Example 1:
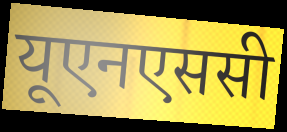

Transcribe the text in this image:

यूएनएससी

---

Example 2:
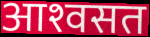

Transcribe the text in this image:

आश्वसत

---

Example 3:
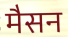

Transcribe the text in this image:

मैसन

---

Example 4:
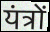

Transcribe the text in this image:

यंत्रों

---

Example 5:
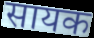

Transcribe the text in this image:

सायक